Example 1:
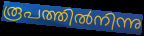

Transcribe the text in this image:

രൂപത്തിൽനിന്നു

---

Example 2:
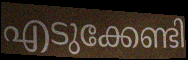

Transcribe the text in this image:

എടുക്കേണ്ടി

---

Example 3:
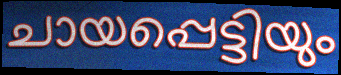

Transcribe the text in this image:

ചായപ്പെട്ടിയും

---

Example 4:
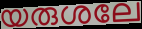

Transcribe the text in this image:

യരുശലേ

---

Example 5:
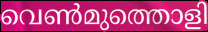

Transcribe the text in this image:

വെൺമുത്തൊളി